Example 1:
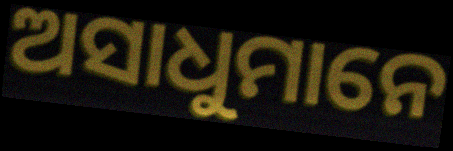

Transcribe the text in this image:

ଅସାଧୁମାନେ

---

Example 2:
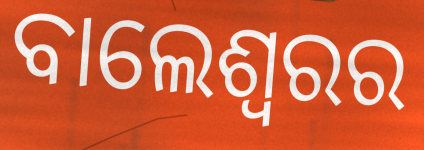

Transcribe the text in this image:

ବାଲେଶ୍ୱରର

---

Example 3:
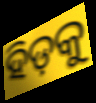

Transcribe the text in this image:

ହିଡ଼କୁ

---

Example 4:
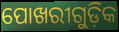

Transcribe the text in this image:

ପୋଖରୀଗୁଡ଼ିକ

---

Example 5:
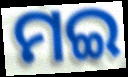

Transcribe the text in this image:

ମଇ